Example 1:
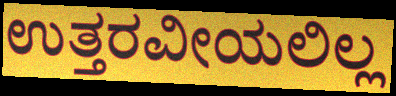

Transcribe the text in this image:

ಉತ್ತರವೀಯಲಿಲ್ಲ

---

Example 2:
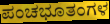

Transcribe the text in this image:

ಪಂಚಭೂತಂಗಳ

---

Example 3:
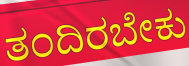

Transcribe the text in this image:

ತಂದಿರಬೇಕು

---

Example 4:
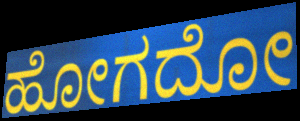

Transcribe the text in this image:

ಹೋಗದೋ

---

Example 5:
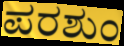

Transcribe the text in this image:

ಪರಶುಂ